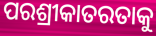
ପରଶ୍ରୀକାତରତାକୁ